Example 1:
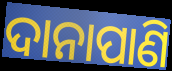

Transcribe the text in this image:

ଦାନାପାଣି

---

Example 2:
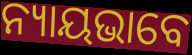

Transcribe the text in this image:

ନ୍ୟାୟଭାବେ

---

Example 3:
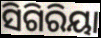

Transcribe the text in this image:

ସିଗିରିୟା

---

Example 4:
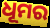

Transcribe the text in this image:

ଧୂମର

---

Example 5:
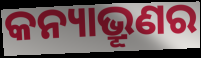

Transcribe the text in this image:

କନ୍ୟାଭ୍ରୂଣର